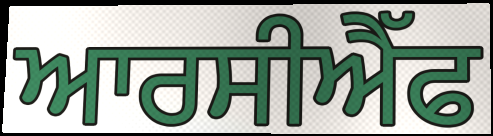
ਆਰਸੀਐੱਫ